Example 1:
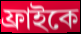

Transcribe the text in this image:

ফ্রাইকে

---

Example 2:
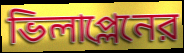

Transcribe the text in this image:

ভিলাপ্লেনের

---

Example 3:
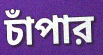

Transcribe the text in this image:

চাঁপার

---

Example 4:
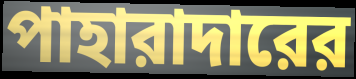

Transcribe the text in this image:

পাহারাদারের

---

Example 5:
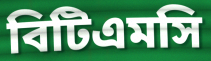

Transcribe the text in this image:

বিটিএমসি